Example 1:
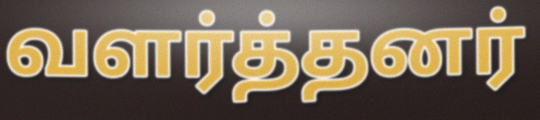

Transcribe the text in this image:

வளர்த்தனர்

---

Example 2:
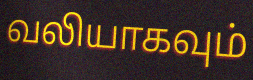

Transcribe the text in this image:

வலியாகவும்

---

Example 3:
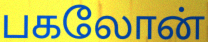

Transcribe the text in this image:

பகலோன்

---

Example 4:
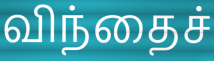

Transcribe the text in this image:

விந்தைச்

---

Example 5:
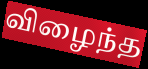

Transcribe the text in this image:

விழைந்த